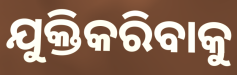
ଯୁକ୍ତିକରିବାକୁ